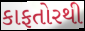
કાફતોરથી